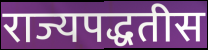
राज्यपद्धतीस